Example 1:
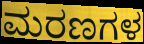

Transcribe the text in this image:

ಮರಣಗಳ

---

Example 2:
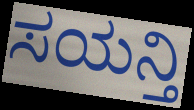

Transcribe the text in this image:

ಸಯನ್ತಿ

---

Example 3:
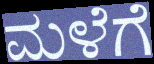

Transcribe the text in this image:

ಮಳೆಗೆ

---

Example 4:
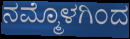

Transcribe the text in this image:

ನಮ್ಮೊಳಗಿಂದ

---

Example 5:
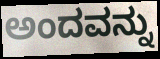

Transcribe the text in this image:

ಅಂದವನ್ನು